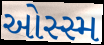
ઓસ્સ્મ